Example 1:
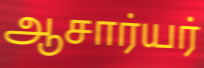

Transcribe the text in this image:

ஆசார்யர்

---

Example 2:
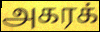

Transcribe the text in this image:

அகரக்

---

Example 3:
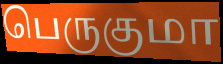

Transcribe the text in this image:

பெருகுமா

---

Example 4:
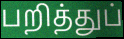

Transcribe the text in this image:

பறித்துப்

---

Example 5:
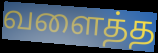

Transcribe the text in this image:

வளைத்த